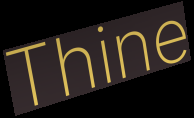
Thine